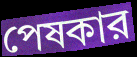
পেষকার